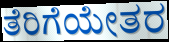
ತೆರಿಗೆಯೇತರ